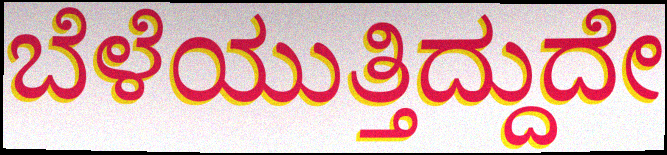
ಬೆಳೆಯುತ್ತಿದ್ದುದೇ